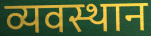
व्यवस्थान